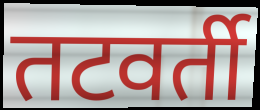
तटवर्ती